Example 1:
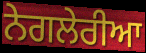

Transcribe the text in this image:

ਨੇਗਲੇਰੀਆ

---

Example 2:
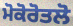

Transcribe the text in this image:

ਮੋਕੋਰੋਤਲੋ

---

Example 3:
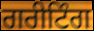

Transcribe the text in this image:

ਗਰੀਟਿੰਗ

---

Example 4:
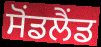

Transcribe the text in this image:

ਸੋਂਡਲੈਂਡ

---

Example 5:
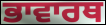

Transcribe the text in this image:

ਭਾਵਾਰਥ